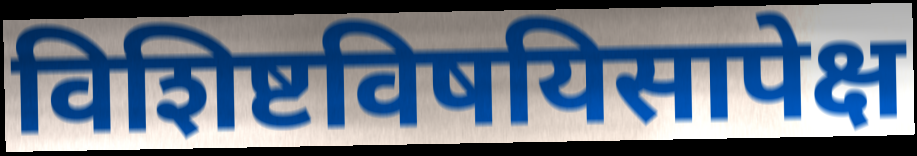
विशिष्टविषयिसापेक्ष